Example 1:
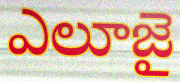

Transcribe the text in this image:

ఎలూజై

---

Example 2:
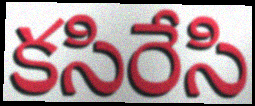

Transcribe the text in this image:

కసిరేసి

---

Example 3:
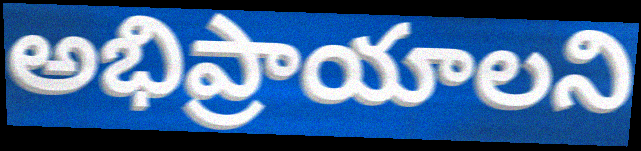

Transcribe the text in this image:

అభిప్రాయాలని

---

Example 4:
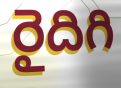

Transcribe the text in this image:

రైదిగి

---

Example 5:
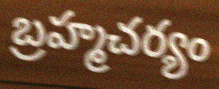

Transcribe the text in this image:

బ్రహ్మచర్యం